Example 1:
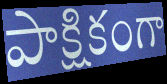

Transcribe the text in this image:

పాక్షికంగా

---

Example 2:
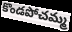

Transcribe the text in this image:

కొండపోచమ్మ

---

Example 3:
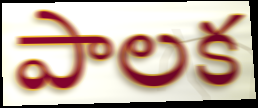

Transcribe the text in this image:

పాలక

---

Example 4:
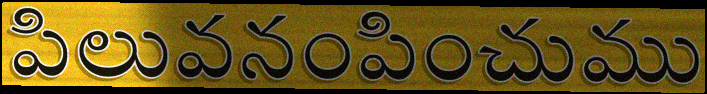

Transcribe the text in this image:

పిలువనంపించుము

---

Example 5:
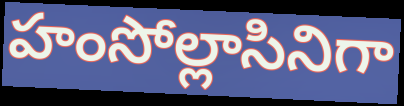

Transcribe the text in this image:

హంసోల్లాసినిగా